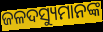
ଜଳଦସ୍ୟୁମାନଙ୍କ